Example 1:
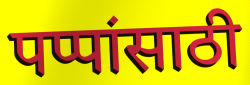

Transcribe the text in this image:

पप्पांसाठी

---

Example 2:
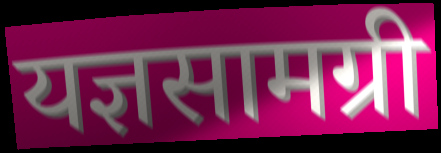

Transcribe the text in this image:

यज्ञसामग्री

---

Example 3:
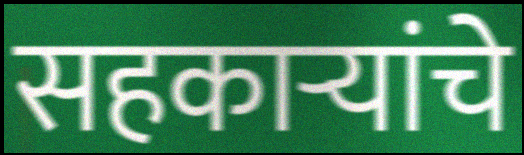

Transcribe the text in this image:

सहकार्‍यांचे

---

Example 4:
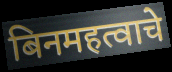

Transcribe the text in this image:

बिनमहत्वाचे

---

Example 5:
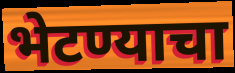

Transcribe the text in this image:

भेटण्याचा